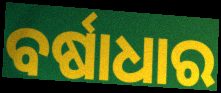
ବର୍ଷାଧାର